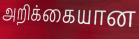
அறிக்கையான